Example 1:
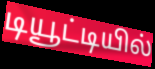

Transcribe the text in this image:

டியூட்டியில்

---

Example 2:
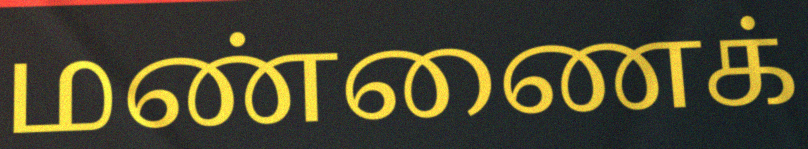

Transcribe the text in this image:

மண்ணைக்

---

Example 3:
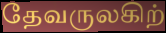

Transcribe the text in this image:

தேவருலகிற்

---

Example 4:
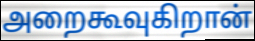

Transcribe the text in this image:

அறைகூவுகிறான்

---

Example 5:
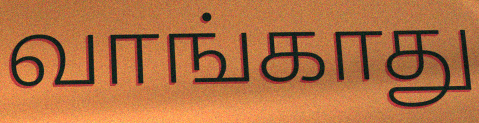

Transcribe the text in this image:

வாங்காது